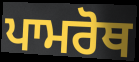
ਪਾਮਰੋਥ